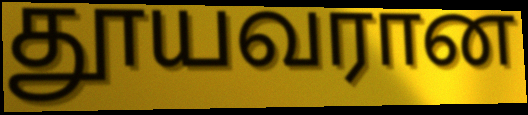
தூயவரான